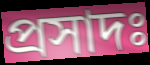
প্রসাদঃ